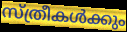
സ്ത്രീകൾക്കും